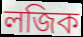
লজিক